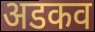
अडकव